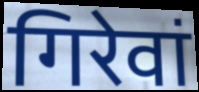
गिरेवां